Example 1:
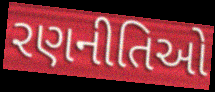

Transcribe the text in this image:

રણનીતિઓ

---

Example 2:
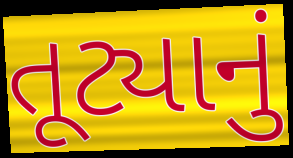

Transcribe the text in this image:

તૂટ્યાનું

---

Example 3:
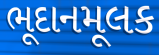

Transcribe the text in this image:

ભૂદાનમૂલક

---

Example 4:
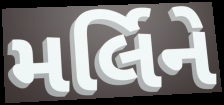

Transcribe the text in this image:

મર્લિને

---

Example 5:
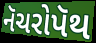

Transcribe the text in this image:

નૅચરોપૅથ